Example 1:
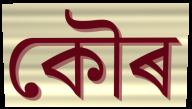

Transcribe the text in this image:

কৌৰ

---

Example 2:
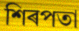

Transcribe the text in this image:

শিৰপতা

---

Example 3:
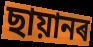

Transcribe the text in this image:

ছায়ানৰ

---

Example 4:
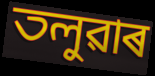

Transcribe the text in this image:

তলুৱাৰ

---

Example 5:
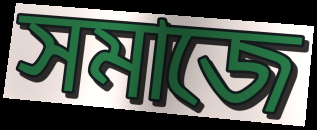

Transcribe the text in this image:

সমাজে